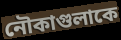
নৌকাগুলাকে